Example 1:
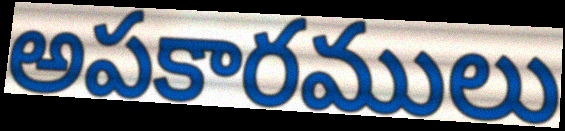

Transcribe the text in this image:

అపకారములు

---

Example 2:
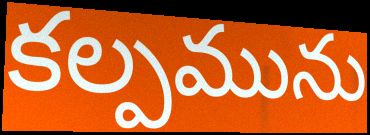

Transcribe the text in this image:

కల్పమును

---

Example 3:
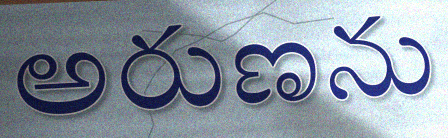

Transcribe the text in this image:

అరుణను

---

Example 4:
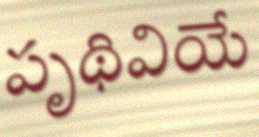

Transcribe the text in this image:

పృథివియే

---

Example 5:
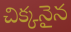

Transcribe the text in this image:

చిక్కనైన